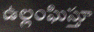
ఉల్లంఘిస్తూ